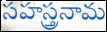
సహస్త్రనామ